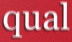
qual